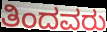
ತಿಂದವರು